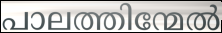
പാലത്തിന്മേൽ